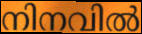
നിനവിൽ